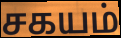
சகயம்